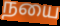
நயை